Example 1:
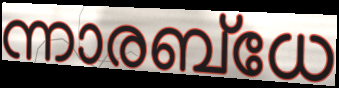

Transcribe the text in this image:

ന്നാരബ്ധേ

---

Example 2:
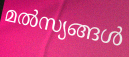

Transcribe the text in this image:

മൽസ്യങ്ങൾ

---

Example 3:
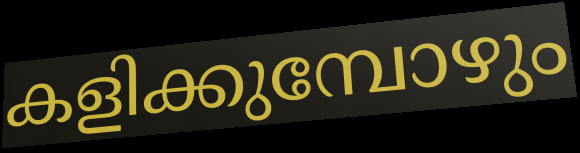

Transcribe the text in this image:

കളിക്കുമ്പോഴും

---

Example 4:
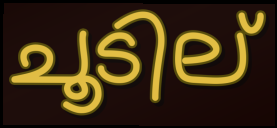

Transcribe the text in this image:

ചൂടില്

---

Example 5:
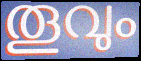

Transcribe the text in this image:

തൂവും